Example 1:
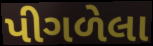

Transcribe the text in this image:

પીગળેલા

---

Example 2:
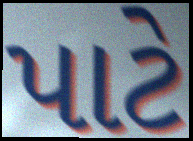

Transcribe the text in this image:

પાટે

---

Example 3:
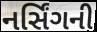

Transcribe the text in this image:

નર્સિંગની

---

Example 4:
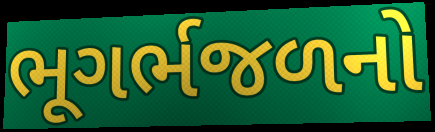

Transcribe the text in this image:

ભૂગર્ભજળનો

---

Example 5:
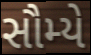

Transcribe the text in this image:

સૌમ્યે